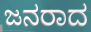
ಜನರಾದ